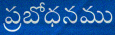
ప్రబోధనము